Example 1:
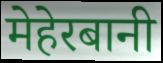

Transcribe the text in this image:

मेहेरबानी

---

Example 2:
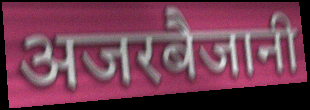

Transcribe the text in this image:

अजरबैजानी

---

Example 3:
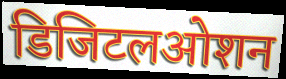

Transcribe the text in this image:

डिजिटलओशन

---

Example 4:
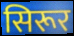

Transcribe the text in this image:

सिरूर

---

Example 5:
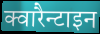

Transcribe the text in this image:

क्वारैन्टाइन